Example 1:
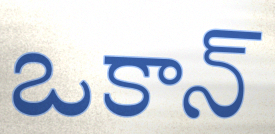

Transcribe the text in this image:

ఒకాన్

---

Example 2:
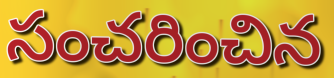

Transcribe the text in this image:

సంచరించిన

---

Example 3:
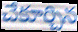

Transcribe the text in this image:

చేకూర్చిన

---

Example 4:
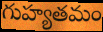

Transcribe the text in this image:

గుహ్యతమం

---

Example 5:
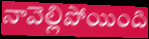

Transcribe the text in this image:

నావెల్లిపోయింది